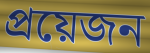
প্রয়েজন